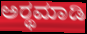
ಅರ್‍ಥಮಾಡಿ